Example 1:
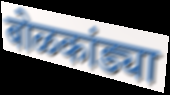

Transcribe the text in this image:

बोळकांड्या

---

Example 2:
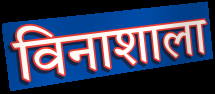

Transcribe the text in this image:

विनाशाला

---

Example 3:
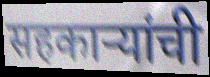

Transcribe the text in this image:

सहकाऱ्यांची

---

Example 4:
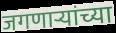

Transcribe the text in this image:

जगणाऱ्यांच्या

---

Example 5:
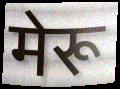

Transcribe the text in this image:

मेरू